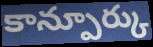
కాన్పూర్కు